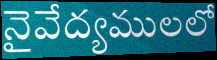
నైవేద్యములలో